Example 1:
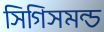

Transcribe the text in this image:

সিগিসমন্ড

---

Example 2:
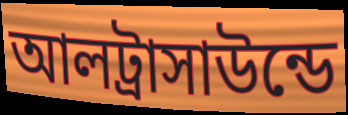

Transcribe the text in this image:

আলট্রাসাউন্ডে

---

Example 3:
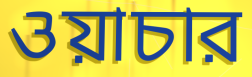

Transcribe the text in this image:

ওয়াচার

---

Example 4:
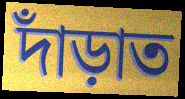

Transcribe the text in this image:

দাঁড়াত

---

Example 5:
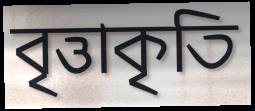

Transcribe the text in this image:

বৃত্তাকৃতি